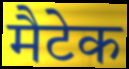
मैटेक